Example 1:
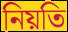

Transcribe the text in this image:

নিয়তি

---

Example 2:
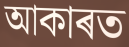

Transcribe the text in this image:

আকাৰত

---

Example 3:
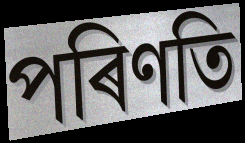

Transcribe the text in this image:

পৰিণতি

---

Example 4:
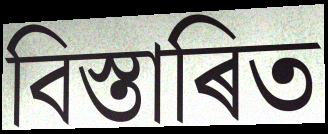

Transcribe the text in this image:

বিস্তাৰিত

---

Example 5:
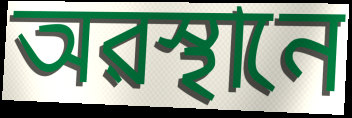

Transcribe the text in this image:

অৱস্থানে